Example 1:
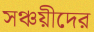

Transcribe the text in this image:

সঞ্চয়ীদের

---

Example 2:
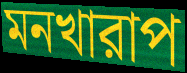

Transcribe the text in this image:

মনখারাপ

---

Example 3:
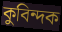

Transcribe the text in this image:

কুবিন্দক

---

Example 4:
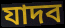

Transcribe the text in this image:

যাদব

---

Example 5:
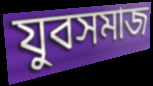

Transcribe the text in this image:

যুবসমাজ